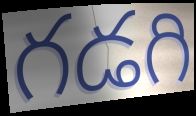
గడగి